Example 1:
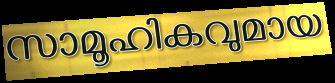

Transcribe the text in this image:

സാമൂഹികവുമായ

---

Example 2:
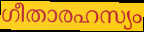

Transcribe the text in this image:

ഗീതാരഹസ്യം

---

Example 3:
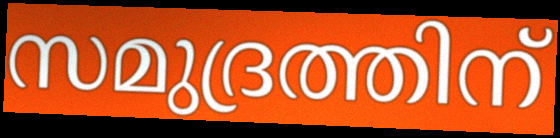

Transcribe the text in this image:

സമുദ്രത്തിന്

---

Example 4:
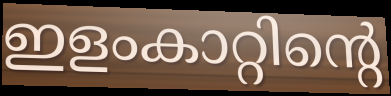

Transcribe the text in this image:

ഇളംകാറ്റിന്റെ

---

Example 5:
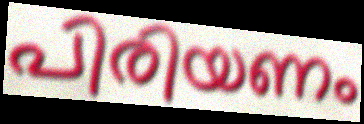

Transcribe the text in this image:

പിരിയണം